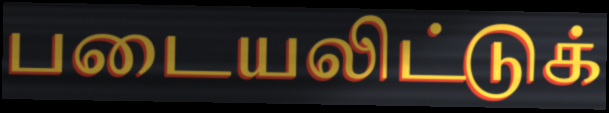
படையலிட்டுக்